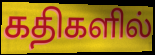
கதிகளில்